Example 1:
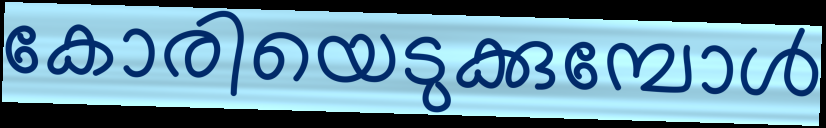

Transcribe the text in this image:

കോരിയെടുക്കുമ്പോൾ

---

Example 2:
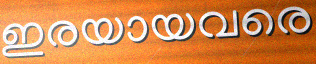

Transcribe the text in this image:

ഇരയായവരെ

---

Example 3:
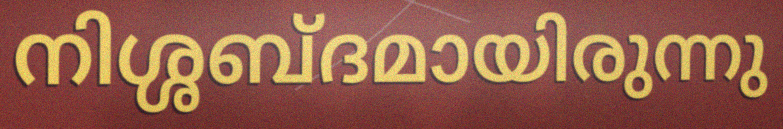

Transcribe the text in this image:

നിശ്ശബ്ദമായിരുന്നു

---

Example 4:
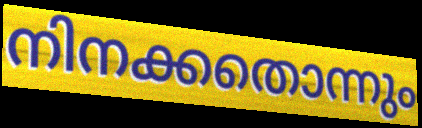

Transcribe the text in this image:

നിനക്കതൊന്നും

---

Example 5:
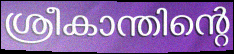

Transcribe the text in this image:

ശ്രീകാന്തിന്റെ